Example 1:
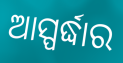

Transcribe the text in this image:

ଆସ୍ପର୍ଦ୍ଧାର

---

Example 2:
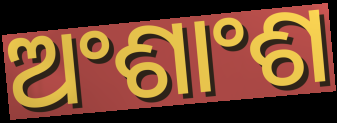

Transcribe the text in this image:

ଅଂଶାଂଶ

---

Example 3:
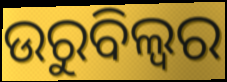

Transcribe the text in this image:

ଉରୁବିଲ୍ଵର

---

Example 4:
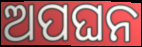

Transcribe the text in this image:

ଅପଘନ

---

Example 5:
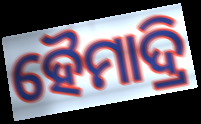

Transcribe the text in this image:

ହୈମାଦ୍ରି